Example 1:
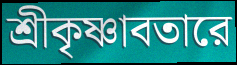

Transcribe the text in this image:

শ্রীকৃষ্ণাবতারে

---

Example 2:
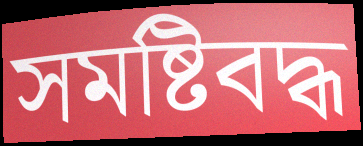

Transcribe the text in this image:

সমষ্টিবদ্ধ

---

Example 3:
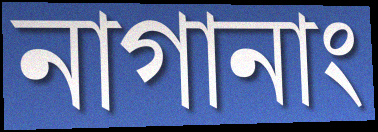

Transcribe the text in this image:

নাগানাং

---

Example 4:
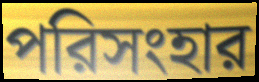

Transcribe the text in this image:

পরিসংহার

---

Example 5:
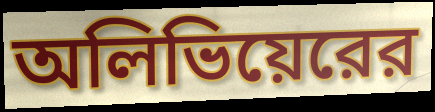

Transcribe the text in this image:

অলিভিয়েরের